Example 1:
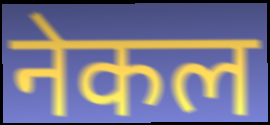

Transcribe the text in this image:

नेकल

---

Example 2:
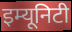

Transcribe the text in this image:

इम्‍यूनिटी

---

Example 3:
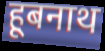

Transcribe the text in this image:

हूबनाथ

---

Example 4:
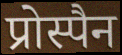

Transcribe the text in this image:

प्रोस्पैन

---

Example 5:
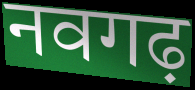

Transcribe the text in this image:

नवगढ़